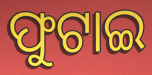
ଫୁଟାଇ